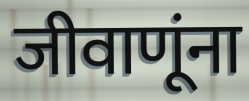
जीवाणूंना